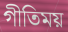
গীতিময়